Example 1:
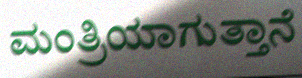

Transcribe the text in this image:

ಮಂತ್ರಿಯಾಗುತ್ತಾನೆ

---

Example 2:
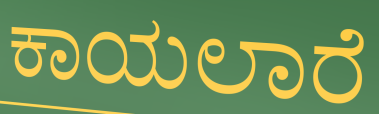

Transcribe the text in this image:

ಕಾಯಲಾರೆ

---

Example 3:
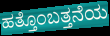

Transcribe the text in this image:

ಹತ್ತೊಂಬತ್ತನೆಯ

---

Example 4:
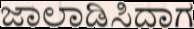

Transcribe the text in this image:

ಜಾಲಾಡಿಸಿದಾಗ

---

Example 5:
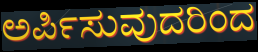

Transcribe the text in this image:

ಅರ್ಪಿಸುವುದರಿಂದ